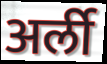
अर्ली